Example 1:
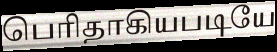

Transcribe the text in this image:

பெரிதாகியபடியே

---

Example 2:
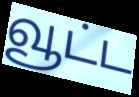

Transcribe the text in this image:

வூட்ட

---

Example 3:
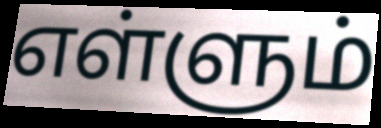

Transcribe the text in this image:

எள்ளும்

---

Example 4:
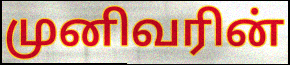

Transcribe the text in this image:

முனிவரின்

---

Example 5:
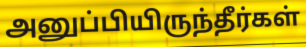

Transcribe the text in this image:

அனுப்பியிருந்தீர்கள்